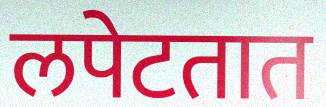
लपेटतात